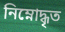
নিম্নোদ্ধৃত